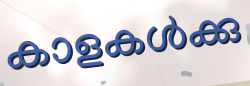
കാളകൾക്കു